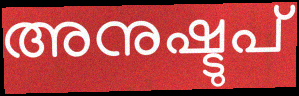
അനുഷ്ടുപ്